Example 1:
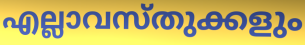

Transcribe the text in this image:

എല്ലാവസ്തുക്കളും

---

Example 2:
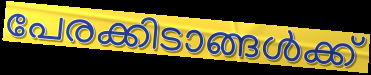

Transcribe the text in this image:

പേരക്കിടാങ്ങൾക്ക്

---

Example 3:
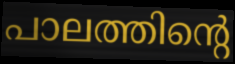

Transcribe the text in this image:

പാലത്തിന്റെ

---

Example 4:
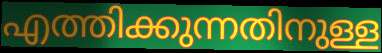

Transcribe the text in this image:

എത്തിക്കുന്നതിനുള്ള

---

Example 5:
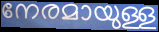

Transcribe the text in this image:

നേരമായുള്ള